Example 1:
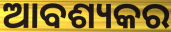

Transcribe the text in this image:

ଆବଶ୍ୟକର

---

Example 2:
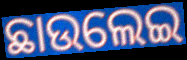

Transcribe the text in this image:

ଛାଉଲେଇ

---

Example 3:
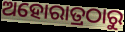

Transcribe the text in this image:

ଅହୋରାତ୍ରଠାରୁ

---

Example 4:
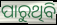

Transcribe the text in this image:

ପାରୁଥିବି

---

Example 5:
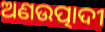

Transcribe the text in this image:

ଅଣଉତ୍ପାଦୀ